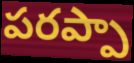
పరప్పా